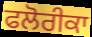
ਫਲੋਰੀਕਾ